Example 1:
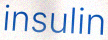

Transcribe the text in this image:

insulin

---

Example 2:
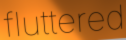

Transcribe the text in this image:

fluttered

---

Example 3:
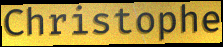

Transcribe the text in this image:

Christophe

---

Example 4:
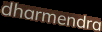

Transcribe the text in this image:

dharmendra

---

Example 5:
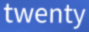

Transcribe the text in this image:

twenty